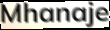
Mhanaje